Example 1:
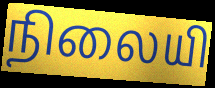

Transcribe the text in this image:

நிலையி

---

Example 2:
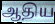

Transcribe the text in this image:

ஆதிய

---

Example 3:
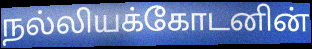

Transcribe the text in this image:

நல்லியக்கோடனின்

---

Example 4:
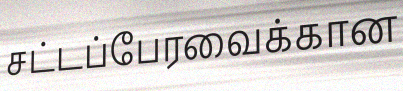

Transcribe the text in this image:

சட்டப்பேரவைக்கான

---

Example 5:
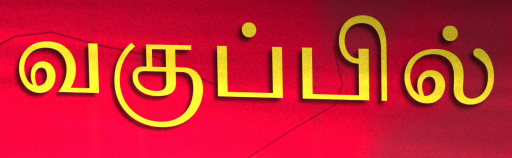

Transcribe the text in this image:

வகுப்பில்